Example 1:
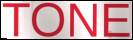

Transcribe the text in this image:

TONE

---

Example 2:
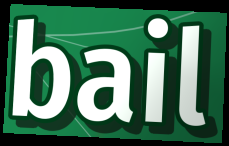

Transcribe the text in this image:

bail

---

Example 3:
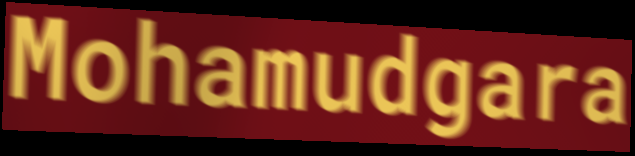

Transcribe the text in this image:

Mohamudgara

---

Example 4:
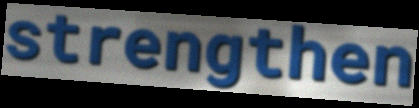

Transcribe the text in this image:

strengthen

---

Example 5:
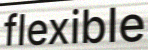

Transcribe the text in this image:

flexible